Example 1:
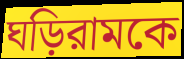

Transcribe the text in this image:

ঘড়িরামকে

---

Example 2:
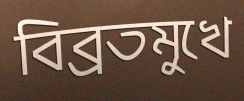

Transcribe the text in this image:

বিব্রতমুখে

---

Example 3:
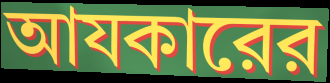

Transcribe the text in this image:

আযকারের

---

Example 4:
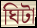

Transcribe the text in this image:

ঘিটা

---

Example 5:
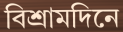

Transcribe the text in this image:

বিশ্রামদিনে